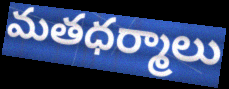
మతధర్మాలు